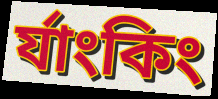
র্যাংকিং